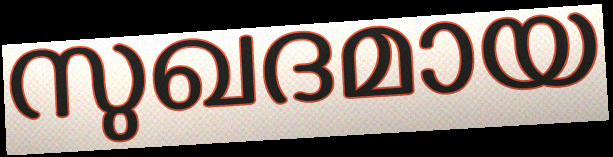
സുഖദമായ